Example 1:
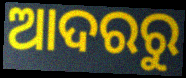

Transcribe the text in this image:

ଆଦରରୁ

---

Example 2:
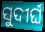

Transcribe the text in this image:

ସୁଦୀର୍ଘ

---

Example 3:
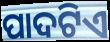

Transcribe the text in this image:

ପାଦଟିଏ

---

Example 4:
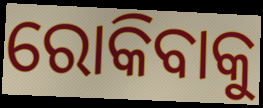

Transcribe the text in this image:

ରୋକିବାକୁ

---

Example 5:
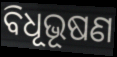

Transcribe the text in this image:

ବିଧୂଭୂଷଣ